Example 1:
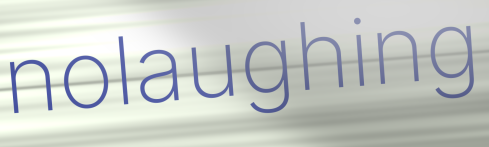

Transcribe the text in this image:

nolaughing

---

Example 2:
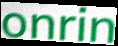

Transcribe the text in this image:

onrin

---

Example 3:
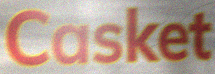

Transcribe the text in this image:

Casket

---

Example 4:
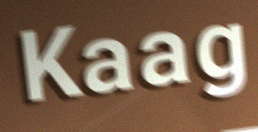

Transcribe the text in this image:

Kaag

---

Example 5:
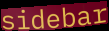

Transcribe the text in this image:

sidebar